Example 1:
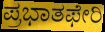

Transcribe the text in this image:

ಪ್ರಭಾತಫೇರಿ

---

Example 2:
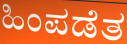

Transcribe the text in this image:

ಹಿಂಪಡೆತ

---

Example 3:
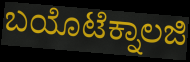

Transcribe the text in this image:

ಬಯೊಟೆಕ್ನಾಲಜಿ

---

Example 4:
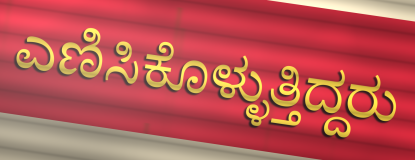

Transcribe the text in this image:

ಎಣಿಸಿಕೊಳ್ಳುತ್ತಿದ್ದರು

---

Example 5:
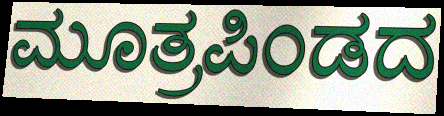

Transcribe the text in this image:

ಮೂತ್ರಪಿಂಡದ